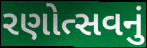
રણોત્સવનું